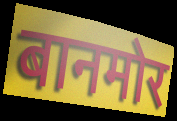
बानमोर